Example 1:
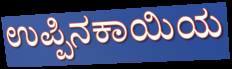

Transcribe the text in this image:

ಉಪ್ಪಿನಕಾಯಿಯ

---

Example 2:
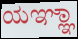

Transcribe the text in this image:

ಯಞ್ಞಾ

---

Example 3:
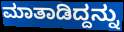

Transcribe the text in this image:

ಮಾತಾಡಿದ್ದನ್ನು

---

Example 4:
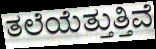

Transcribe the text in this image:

ತಲೆಯೆತ್ತುತ್ತಿವೆ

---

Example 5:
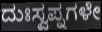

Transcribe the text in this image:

ದುಃಸ್ವಪ್ನಗಳೇ